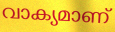
വാക്യമാണ്